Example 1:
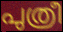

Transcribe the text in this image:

പുത്രീ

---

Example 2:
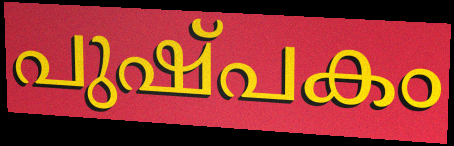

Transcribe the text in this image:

പുഷ്പകം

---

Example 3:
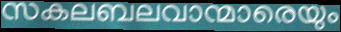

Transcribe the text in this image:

സകലബലവാന്മാരെയും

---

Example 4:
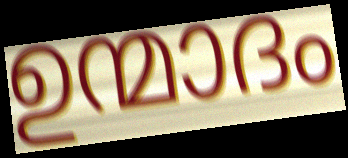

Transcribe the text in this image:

ഉന്മാദം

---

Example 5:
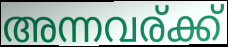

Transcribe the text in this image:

അന്നവര്ക്ക്